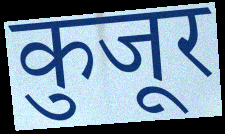
कुजूर